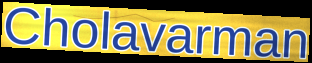
Cholavarman